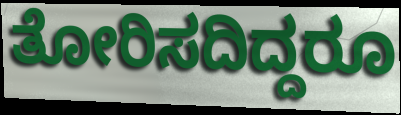
ತೋರಿಸದಿದ್ದರೂ